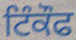
ਟਿੰਕੌਫ